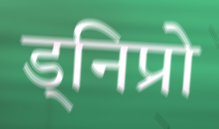
ड्निप्रो